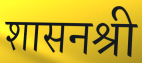
शासनश्री